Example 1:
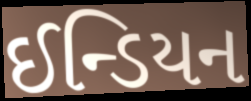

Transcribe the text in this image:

ઈન્ડિયન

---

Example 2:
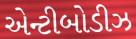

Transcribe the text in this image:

એન્ટીબોડીઝ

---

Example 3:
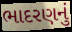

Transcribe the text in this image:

ભાદરણનું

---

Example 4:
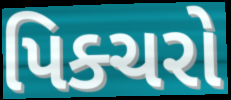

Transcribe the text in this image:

પિક્ચરો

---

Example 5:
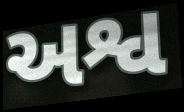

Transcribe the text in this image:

અશ્વ